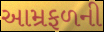
આમ્રફળની